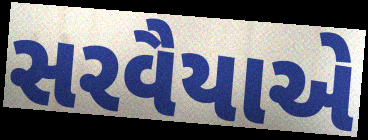
સરવૈયાએ